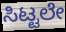
ಸಿಟ್ಟಲೇ